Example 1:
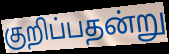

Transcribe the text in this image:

குறிப்பதன்று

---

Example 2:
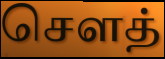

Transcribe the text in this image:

சௌத்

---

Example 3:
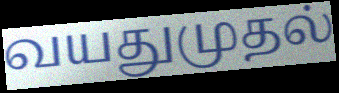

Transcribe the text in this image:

வயதுமுதல்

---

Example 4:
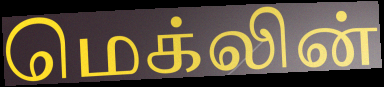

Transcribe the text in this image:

மெக்லின்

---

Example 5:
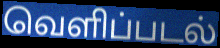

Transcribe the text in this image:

வெளிப்படல்